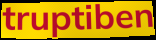
truptiben